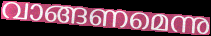
വാങ്ങണമെന്നു